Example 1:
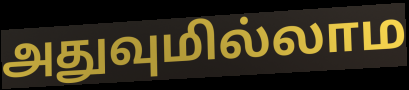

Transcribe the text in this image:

அதுவுமில்லாம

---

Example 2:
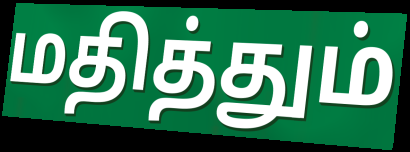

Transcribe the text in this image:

மதித்தும்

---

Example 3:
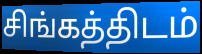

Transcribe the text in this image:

சிங்கத்திடம்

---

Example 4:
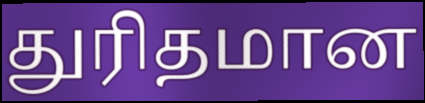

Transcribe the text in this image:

துரிதமான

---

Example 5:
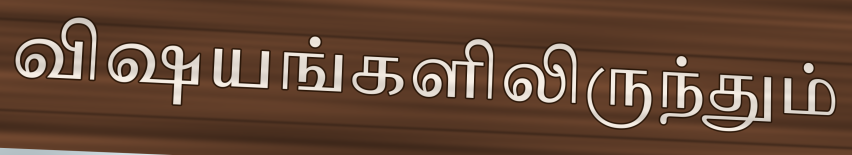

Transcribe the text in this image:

விஷயங்களிலிருந்தும்